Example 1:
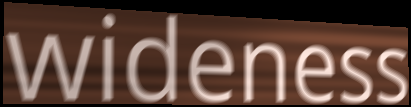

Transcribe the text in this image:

wideness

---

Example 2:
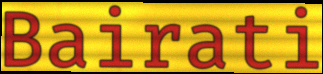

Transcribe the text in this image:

Bairati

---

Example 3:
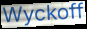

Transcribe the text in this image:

Wyckoff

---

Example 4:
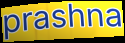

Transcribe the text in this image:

prashna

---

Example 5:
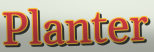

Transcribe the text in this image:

Planter